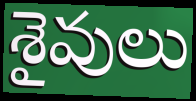
శైవులు